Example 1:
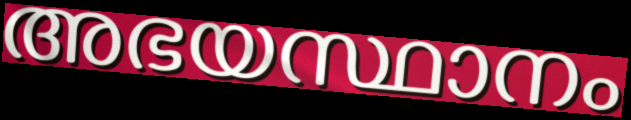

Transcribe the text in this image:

അഭയസ്ഥാനം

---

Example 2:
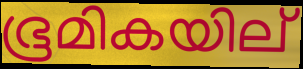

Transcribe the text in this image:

ഭൂമികയില്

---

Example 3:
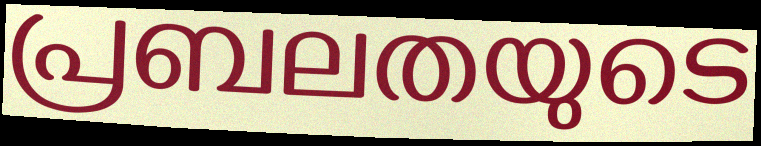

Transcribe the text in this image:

പ്രബലതയുടെ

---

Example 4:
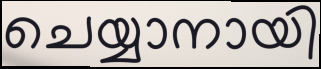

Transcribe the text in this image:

ചെയ്യാനായി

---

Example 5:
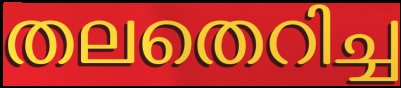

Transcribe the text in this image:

തലതെറിച്ച